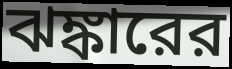
ঝঙ্কারের